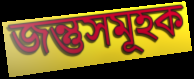
জন্তুসমূহক